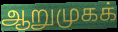
ஆறுமுகக்